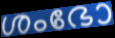
ശംഭോ